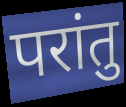
परांतु